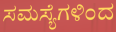
ಸಮಸ್ಯೆಗಳಿಂದ